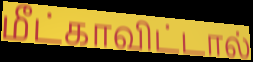
மீட்காவிட்டால்